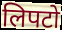
लिपटो